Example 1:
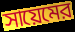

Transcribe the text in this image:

সায়েমের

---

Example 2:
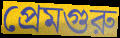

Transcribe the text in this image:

প্রেমগুরু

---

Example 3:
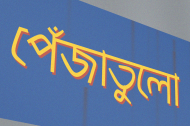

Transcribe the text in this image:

পেঁজাতুলো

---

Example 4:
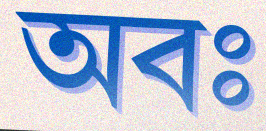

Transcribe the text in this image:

অবঃ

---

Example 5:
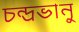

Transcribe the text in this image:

চন্দ্রভানু